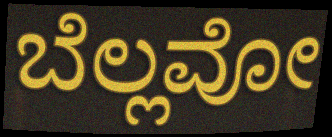
ಬೆಲ್ಲವೋ